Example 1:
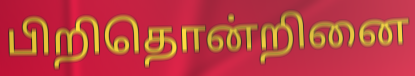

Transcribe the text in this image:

பிறிதொன்றினை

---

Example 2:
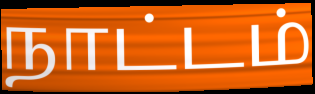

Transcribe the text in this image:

நாட்டம்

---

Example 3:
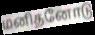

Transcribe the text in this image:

மனிதனோடு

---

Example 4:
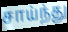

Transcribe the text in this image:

சாய்ந்து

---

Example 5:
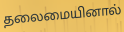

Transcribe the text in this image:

தலைமையினால்